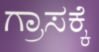
ಗ್ರಾಸಕ್ಕೆ